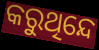
କରୁଥିନ୍ଦେ